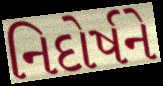
નિદોર્ષને